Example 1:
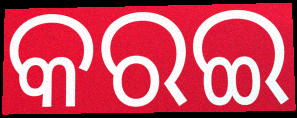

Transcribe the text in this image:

କରଇ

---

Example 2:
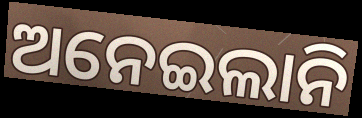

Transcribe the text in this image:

ଅନେଇଲାନି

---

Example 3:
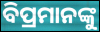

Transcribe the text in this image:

ବିପ୍ରମାନଙ୍କୁ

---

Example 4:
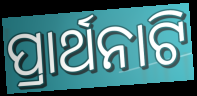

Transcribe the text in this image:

ପ୍ରାର୍ଥନାଟି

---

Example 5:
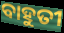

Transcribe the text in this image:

ବାହୁତୀ